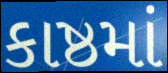
કાષ્ઠમાં